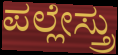
ಪಲ್ಲೇಸ್ತ್ರು